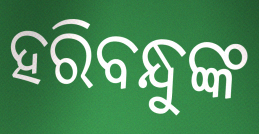
ହରିବନ୍ଧୁଙ୍କ